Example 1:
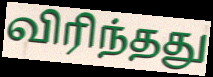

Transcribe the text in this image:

விரிந்தது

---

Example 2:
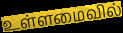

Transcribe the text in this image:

உள்ளமைவில்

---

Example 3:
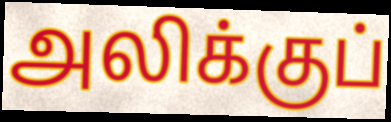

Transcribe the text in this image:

அலிக்குப்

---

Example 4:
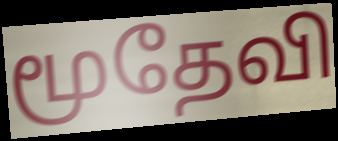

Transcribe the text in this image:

மூதேவி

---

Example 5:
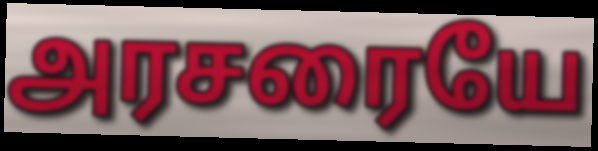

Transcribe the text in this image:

அரசரையே